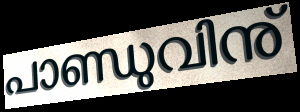
പാണ്ഡുവിനു്